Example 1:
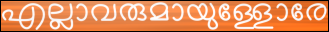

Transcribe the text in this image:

എല്ലാവരുമായുള്ളോരേ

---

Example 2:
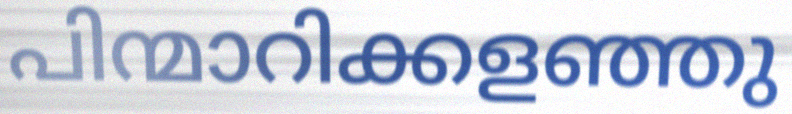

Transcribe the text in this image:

പിന്മാറിക്കളഞ്ഞു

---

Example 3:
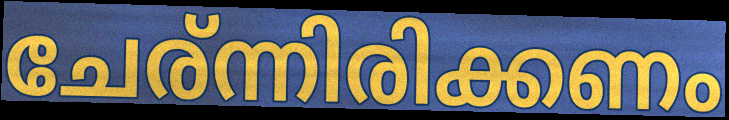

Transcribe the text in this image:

ചേര്ന്നിരിക്കണം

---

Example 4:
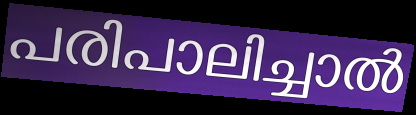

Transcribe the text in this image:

പരിപാലിച്ചാൽ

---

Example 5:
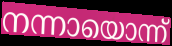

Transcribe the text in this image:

നന്നായൊന്ന്